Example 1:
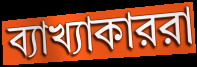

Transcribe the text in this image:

ব্যাখ্যাকাররা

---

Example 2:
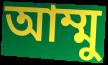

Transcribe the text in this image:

আম্মু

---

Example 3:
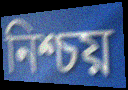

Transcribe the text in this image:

নিশ্চয়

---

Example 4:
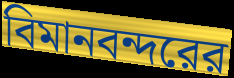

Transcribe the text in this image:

বিমানবন্দরের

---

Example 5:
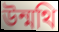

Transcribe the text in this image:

উন্মথি